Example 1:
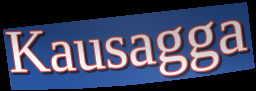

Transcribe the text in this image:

Kausagga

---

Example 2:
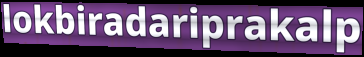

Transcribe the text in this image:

lokbiradariprakalp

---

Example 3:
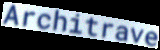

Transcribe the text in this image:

Architrave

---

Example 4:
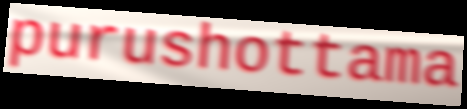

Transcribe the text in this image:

purushottama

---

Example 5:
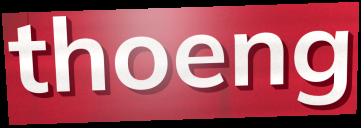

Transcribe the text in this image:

thoeng